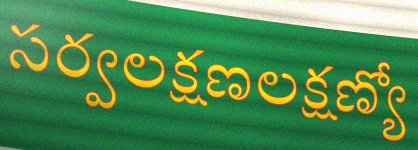
సర్వలక్షణలక్షణ్యో